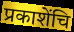
प्रकाशेंचि